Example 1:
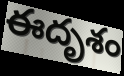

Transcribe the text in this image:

ఈదృశం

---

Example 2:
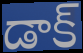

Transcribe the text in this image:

డాక్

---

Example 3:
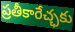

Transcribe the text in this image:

ప్రతీకారేచ్ఛకు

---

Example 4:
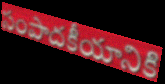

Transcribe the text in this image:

సంపాదకీయానికి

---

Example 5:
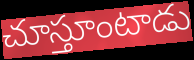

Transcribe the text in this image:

చూస్తూంటాడు